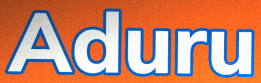
Aduru